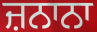
ਜ਼ਨਾਨਾ